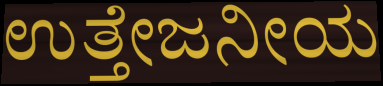
ಉತ್ತೇಜನೀಯ